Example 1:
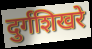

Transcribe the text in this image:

दुर्गशिखरे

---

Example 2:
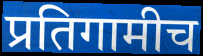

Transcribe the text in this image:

प्रतिगामीच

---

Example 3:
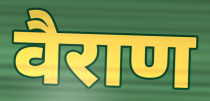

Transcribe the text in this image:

वैराण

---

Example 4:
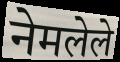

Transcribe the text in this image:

नेमलेले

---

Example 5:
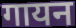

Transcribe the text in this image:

गायन